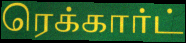
ரெக்கார்ட்